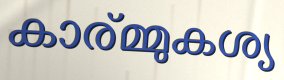
കാര്മ്മുകശ്യ